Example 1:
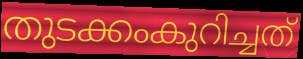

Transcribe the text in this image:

തുടക്കംകുറിച്ചത്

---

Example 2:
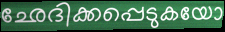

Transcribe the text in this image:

ഛേദിക്കപ്പെടുകയോ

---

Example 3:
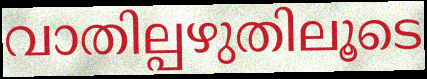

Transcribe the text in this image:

വാതില്പഴുതിലൂടെ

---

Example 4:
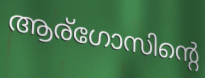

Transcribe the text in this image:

ആര്ഗോസിന്റെ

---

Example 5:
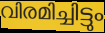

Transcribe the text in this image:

വിരമിച്ചിട്ടും